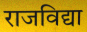
राजविद्या